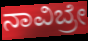
ನಾವಿಬ್ರೇ